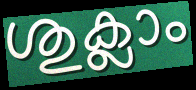
ശുക്ലാം